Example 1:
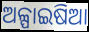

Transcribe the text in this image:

ଅଳ୍ପାଇଷିଆ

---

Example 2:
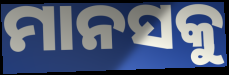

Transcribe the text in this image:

ମାନସକୁ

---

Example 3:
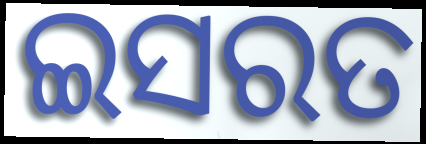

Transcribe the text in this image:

ଇସରତ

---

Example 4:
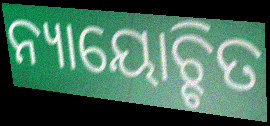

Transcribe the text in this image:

ନ୍ୟାୟୋଚ୍ଚିତ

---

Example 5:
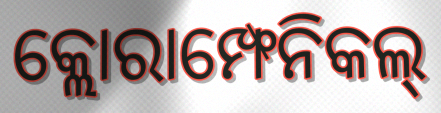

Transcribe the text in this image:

କ୍ଲୋରାମ୍ଫେନିକଲ୍